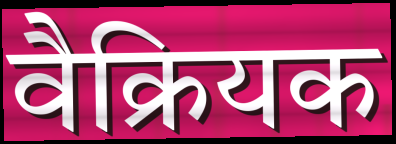
वैक्रियक